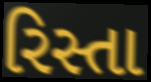
રિસ્તા